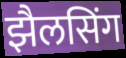
झैलसिंग